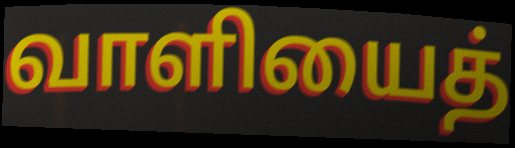
வாளியைத்